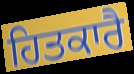
ਹਿਤਕਾਰੈ